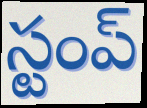
స్టంప్